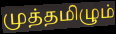
முத்தமிழும்